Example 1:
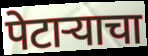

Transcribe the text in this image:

पेटाऱ्याचा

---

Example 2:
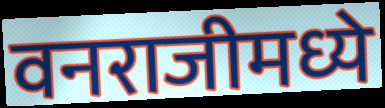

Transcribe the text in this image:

वनराजीमध्ये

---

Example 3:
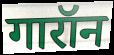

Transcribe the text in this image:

गारॉन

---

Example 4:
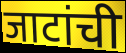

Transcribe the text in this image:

जाटांची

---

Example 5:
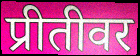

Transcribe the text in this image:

प्रीतीवर